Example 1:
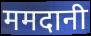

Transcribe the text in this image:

ममदानी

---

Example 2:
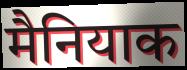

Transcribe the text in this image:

मैनियाक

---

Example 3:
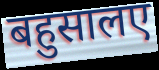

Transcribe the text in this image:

बहुसालए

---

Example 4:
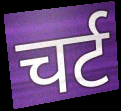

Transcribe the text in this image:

चर्ट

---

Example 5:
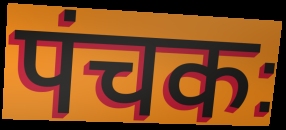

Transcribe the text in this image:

पंचकः